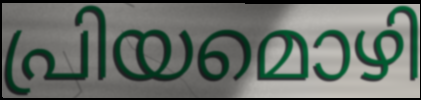
പ്രിയമൊഴി